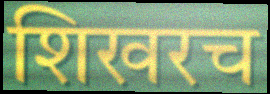
शिखरच